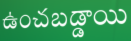
ఉంచబడ్డాయి